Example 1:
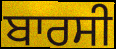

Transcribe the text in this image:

ਬਾਰਸੀ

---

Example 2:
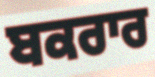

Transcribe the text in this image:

ਬਕਰਾਰ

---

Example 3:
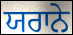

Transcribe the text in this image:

ਯਰਾਨੇ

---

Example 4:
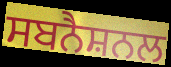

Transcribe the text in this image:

ਸਬਨੈਸ਼ਨਲ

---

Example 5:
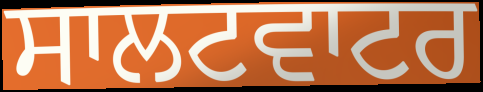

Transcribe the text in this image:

ਸਾਲਟਵਾਟਰ